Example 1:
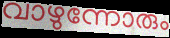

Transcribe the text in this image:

വാഴുന്നോരും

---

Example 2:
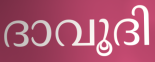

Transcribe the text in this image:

ദാവൂദി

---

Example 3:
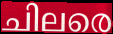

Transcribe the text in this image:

ചിലരെ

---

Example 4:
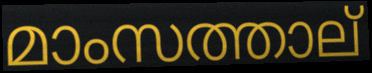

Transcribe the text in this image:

മാംസത്താല്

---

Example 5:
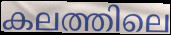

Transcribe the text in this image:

കലത്തിലെ